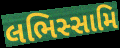
લભિસ્સામિ